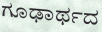
ಗೂಢಾರ್ಥದ